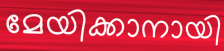
മേയിക്കാനായി